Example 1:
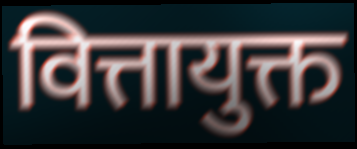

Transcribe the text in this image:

वित्तायुक्त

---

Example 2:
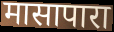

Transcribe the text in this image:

मासापारा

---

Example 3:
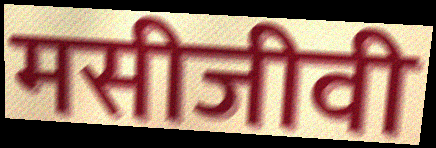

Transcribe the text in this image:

मसीजीवी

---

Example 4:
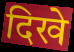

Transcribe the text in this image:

दिखे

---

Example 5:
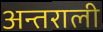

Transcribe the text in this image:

अन्तराली